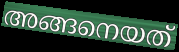
അങ്ങനെയത്